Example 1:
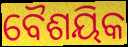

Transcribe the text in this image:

ବୈଶୟିକ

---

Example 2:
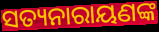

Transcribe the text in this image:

ସତ୍ୟନାରାୟଣଙ୍କ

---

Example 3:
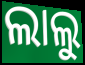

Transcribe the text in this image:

ଲାଲୁ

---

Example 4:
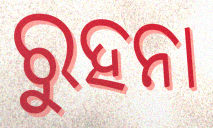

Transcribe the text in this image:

ରୁହନା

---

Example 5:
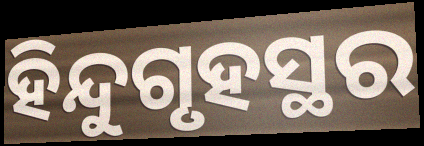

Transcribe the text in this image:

ହିନ୍ଦୁଗୃହସ୍ଥର